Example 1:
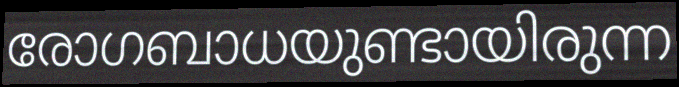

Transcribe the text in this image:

രോഗബാധയുണ്ടായിരുന്ന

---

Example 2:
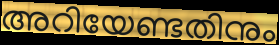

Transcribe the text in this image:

അറിയേണ്ടതിനും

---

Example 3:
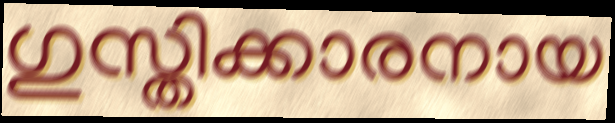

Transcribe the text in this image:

ഗുസ്തിക്കാരനായ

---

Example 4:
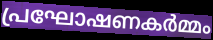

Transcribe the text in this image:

പ്രഘോഷണകർമ്മം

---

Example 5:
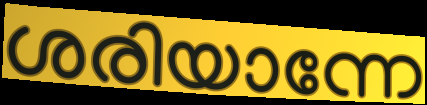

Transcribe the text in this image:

ശരിയാന്നേ